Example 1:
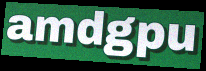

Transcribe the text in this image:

amdgpu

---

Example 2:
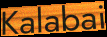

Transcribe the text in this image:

Kalabai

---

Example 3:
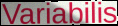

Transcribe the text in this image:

Variabilis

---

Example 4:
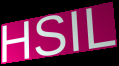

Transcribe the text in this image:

HSIL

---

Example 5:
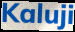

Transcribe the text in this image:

Kaluji